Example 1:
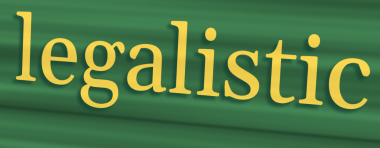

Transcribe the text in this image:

legalistic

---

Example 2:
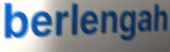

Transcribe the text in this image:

berlengah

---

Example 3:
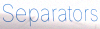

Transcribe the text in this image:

Separators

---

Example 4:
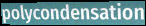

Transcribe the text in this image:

polycondensation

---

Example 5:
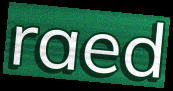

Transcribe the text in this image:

raed